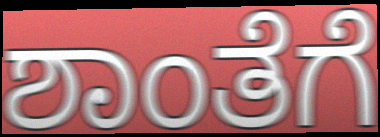
ಶಾಂತೆಗೆ